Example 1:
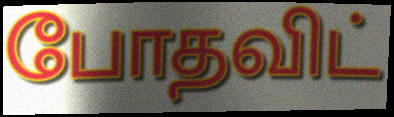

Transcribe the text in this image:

போதவிட்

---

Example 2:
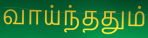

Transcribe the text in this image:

வாய்ந்ததும்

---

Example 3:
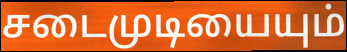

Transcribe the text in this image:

சடைமுடியையும்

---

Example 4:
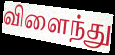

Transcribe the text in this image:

விளைந்து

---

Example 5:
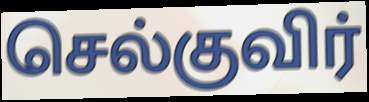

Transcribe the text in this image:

செல்குவிர்